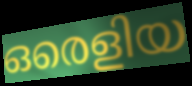
ഒരെളിയ